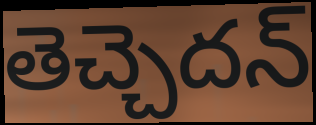
తెచ్చెదన్